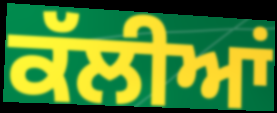
ਕੱਲੀਆਂ